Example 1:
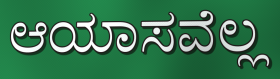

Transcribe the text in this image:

ಆಯಾಸವೆಲ್ಲ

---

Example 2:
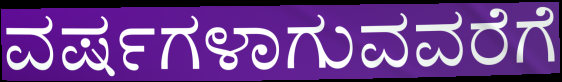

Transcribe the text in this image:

ವರ್ಷಗಳಾಗುವವರೆಗೆ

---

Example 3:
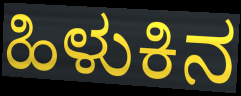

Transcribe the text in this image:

ಹಿಳುಕಿನ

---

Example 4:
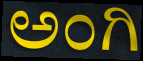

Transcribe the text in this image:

ಅಂಗಿ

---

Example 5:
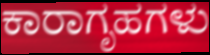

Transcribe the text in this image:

ಕಾರಾಗೃಹಗಳು